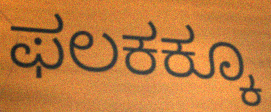
ಫಲಕಕ್ಕೂ